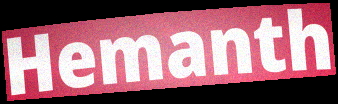
Hemanth